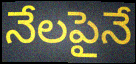
నేలపైనే